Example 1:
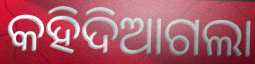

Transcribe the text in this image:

କହିଦିଆଗଲା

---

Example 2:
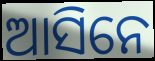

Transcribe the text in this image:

ଆସିନେ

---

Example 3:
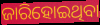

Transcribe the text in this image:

ଜାରିହୋଇଥିବା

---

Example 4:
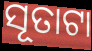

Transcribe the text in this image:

ସୂତାଟା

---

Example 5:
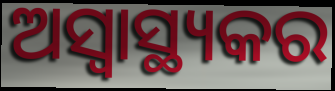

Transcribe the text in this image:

ଅସ୍ୱାସ୍ଥ୍ୟକର